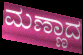
ಮಣ್ಣಾದ